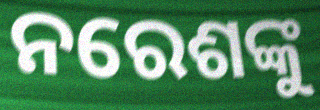
ନରେଶଙ୍କୁ